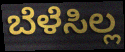
ಬೆಳೆಸಿಲ್ಲ